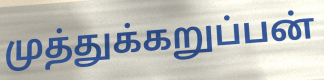
முத்துக்கறுப்பன்